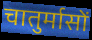
चातुर्मासों